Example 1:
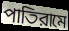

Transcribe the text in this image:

পাতিরামে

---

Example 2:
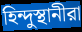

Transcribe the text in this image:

হিন্দুস্থানীরা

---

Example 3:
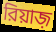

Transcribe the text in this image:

রিয়াজ়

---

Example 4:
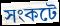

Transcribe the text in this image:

সংকটে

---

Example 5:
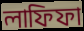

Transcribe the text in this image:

লাফিফা